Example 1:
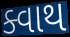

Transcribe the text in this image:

ક્વાથ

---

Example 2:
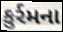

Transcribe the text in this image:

કુર્રમના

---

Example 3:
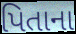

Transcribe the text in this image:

પિતાના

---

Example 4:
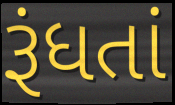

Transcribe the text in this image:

રૂંધતાં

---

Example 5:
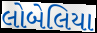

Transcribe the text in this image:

લોબેલિયા